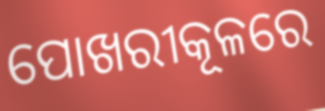
ପୋଖରୀକୂଳରେ